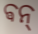
ଵନ୍